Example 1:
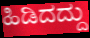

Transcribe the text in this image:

ಹಿಡಿದದ್ದು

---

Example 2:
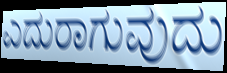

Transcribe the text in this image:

ಎದುರಾಗುವುದು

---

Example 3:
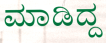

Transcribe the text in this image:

ಮಾಡಿದ್ದ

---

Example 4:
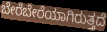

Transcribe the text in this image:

ಬೇರೆಬೇರೆಯಾಗಿರುತ್ತದೆ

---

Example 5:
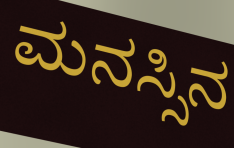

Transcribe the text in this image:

ಮನಸ್ಸಿನ